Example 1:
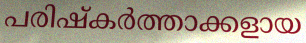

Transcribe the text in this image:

പരിഷ്കർത്താക്കളായ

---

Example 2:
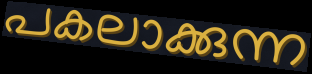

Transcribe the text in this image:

പകലാക്കുന്ന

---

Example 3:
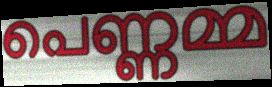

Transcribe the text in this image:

പെണ്ണമ്മ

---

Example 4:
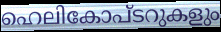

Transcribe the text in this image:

ഹെലികോപ്ടറുകളും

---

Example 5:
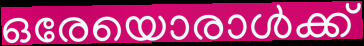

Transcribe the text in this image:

ഒരേയൊരാൾക്ക്